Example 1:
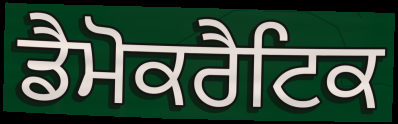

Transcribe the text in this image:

ਡੈਮੋਕਰੈਟਿਕ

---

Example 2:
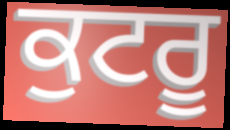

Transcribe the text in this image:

ਕੁਟਰੂ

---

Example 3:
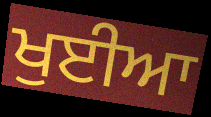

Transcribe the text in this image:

ਖੁਈਆ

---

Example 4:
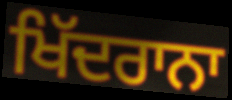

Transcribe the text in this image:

ਖਿੱਦਰਾਨਾ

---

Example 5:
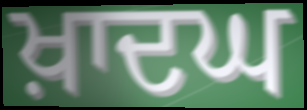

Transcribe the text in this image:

ਖ਼ਾਦਘ